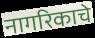
नागरिकाचे